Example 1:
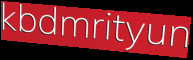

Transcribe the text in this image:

kbdmrityun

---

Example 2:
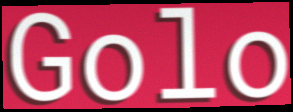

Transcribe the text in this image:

Golo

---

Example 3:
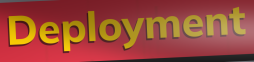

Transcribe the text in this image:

Deployment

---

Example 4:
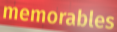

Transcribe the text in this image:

memorables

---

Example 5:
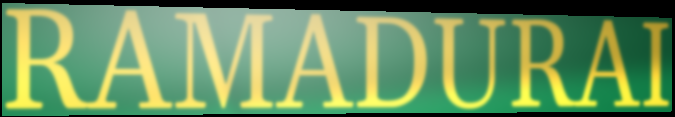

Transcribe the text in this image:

RAMADURAI